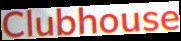
Clubhouse